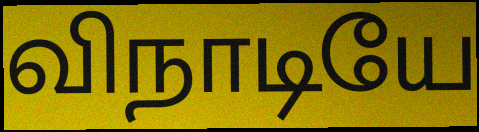
விநாடியே